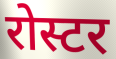
रोस्टर